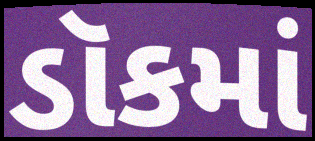
ડૉકમાં